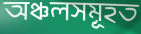
অঞ্চলসমূহত